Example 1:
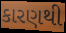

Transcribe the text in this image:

કારણથી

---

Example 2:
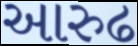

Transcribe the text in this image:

આરુઢ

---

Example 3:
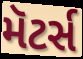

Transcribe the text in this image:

મૅટર્સ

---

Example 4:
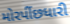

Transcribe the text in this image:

મોરપીંછધારી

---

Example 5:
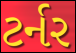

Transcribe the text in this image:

ટર્નર